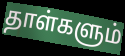
தாள்களும்